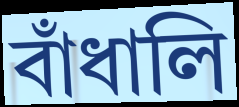
বাঁধালি